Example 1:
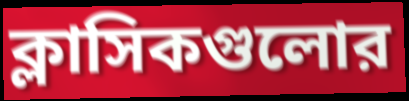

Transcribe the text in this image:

ক্লাসিকগুলোর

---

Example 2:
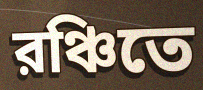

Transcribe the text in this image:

রঞ্চিতে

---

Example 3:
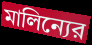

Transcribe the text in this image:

মালিন্যের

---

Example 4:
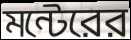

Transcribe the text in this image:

মন্টেরের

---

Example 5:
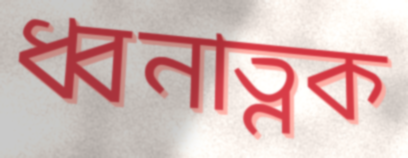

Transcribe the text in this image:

ধ্বনাত্নক